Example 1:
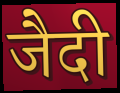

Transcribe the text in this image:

जैदी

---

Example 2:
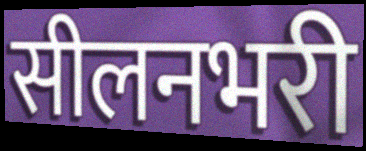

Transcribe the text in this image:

सीलनभरी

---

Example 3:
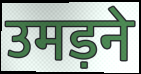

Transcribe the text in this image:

उमड़ने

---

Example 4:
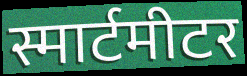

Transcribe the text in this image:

स्मार्टमीटर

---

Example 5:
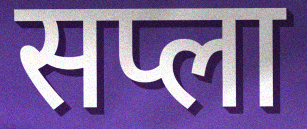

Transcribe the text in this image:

सप्ला